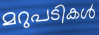
മറുപടികൾ